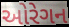
ઓરેગન